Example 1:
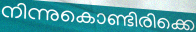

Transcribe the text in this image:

നിന്നുകൊണ്ടിരിക്കെ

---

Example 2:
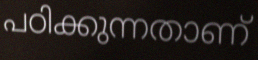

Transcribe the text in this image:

പഠിക്കുന്നതാണ്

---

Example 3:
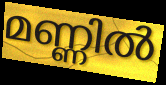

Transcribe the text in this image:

മണ്ണിൽ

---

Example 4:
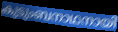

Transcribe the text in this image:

കുടുംബനാഥനായി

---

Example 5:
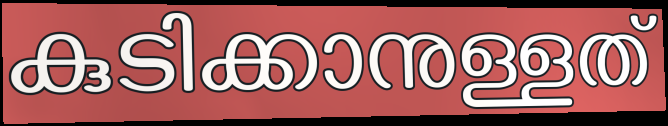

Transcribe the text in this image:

കുടിക്കാനുള്ളത്